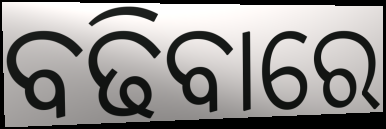
ବଢିବାରେ